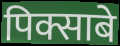
पिक्साबे